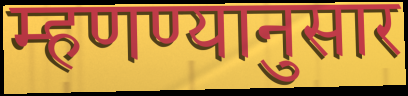
म्हणण्यानुसार